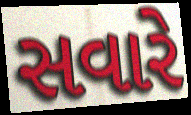
સવારે